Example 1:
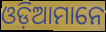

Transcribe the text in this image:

ଓଡ଼ିଆମାନେ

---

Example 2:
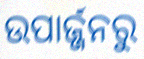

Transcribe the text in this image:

ଉପାର୍ଜ୍ଜନରୁ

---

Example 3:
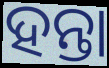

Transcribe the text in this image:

ହନ୍ତା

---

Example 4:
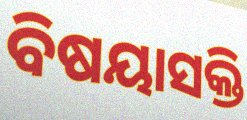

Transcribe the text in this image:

ବିଷୟାସକ୍ତି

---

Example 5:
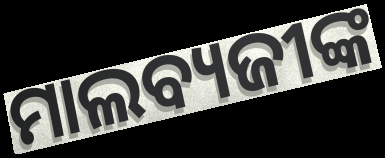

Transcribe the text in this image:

ମାଲବ୍ୟଜୀଙ୍କ